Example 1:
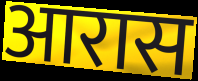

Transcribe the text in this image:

आरास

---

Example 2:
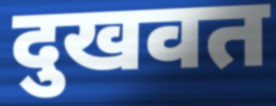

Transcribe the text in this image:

दुखवत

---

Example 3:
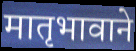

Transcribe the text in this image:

मातृभावाने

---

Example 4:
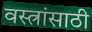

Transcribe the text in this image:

वस्त्रांसाठी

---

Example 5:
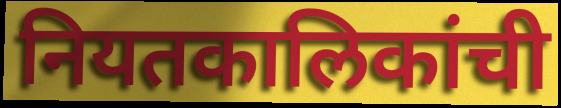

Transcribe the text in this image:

नियतकालिकांची